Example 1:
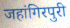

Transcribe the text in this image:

जहांगिरपुरी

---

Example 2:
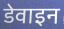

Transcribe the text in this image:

डेवाइन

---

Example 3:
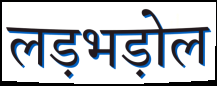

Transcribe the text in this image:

लड़भड़ोल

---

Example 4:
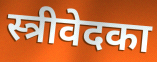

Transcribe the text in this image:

स्त्रीवेदका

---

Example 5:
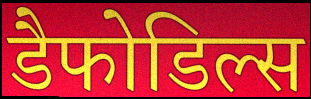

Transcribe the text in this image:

डैफोडिल्स